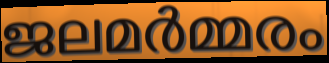
ജലമർമ്മരം